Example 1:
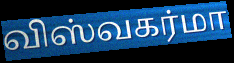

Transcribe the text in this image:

விஸ்வகர்மா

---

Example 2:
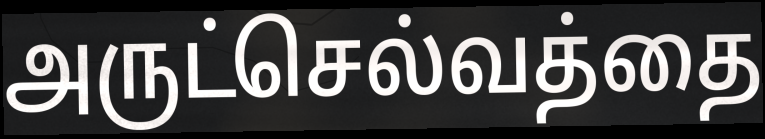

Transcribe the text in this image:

அருட்செல்வத்தை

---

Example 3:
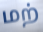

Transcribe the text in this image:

மற்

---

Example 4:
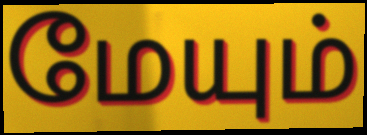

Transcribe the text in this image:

மேயும்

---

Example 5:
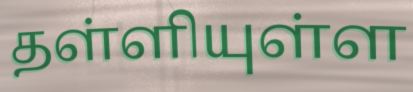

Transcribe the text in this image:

தள்ளியுள்ள